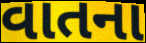
વાતના